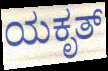
ಯಕೃತ್